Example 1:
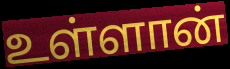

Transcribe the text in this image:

உள்ளான்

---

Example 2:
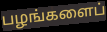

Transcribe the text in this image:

பழங்களைப்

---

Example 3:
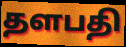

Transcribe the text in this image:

தளபதி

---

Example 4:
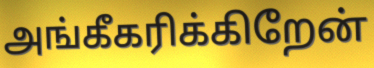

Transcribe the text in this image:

அங்கீகரிக்கிறேன்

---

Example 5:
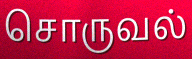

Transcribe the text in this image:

சொருவல்